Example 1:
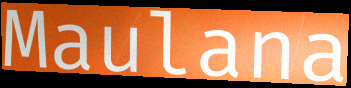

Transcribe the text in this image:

Maulana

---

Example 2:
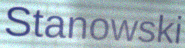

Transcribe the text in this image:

Stanowski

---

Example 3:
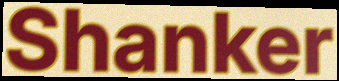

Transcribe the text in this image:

Shanker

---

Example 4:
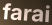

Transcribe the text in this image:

farai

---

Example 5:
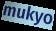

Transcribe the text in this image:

mukyo